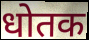
धोतक